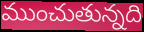
ముంచుతున్నది